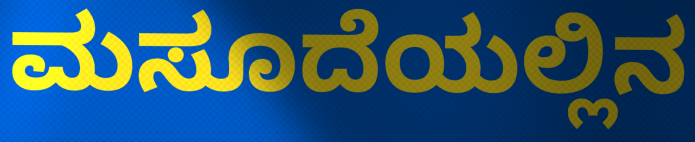
ಮಸೂದೆಯಲ್ಲಿನ